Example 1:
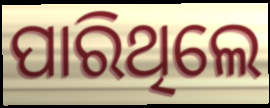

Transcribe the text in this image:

ପାରିଥିଲେ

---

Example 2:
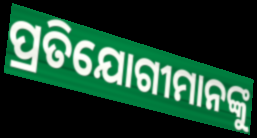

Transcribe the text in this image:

ପ୍ରତିଯୋଗୀମାନଙ୍କୁ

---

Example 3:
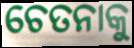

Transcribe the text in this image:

ଚେତନାକୁ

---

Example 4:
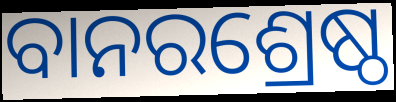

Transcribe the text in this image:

ବାନରଶ୍ରେଷ୍ଠ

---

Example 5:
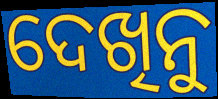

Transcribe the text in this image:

ଦେଖିନୁ